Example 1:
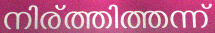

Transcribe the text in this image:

നിര്ത്തിത്തന്ന്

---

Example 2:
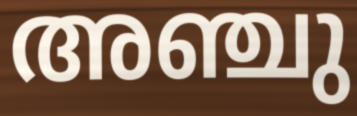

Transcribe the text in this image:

അഞ്ചു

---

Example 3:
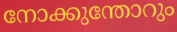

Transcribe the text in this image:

നോക്കുന്തോറും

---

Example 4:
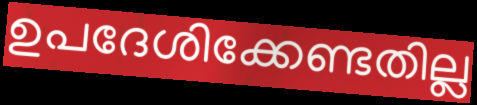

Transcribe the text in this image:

ഉപദേശിക്കേണ്ടതില്ല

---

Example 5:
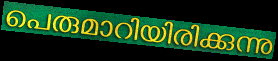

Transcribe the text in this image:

പെരുമാറിയിരിക്കുന്നു